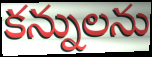
కన్నులను